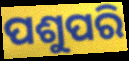
ପଶୁପରି